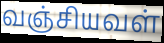
வஞ்சியவள்